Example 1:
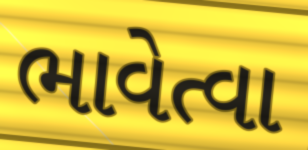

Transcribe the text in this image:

ભાવેત્વા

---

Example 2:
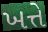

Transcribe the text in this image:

ખત્તે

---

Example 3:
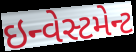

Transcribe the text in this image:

ઇન્વેસ્ટમેન્ટ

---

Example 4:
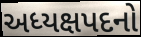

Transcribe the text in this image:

અધ્યક્ષપદનો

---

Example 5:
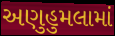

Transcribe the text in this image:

અણુહુમલામાં